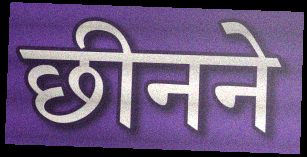
छीनने